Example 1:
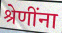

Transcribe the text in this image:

श्रेणींना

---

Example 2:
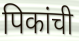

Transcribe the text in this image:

पिकांची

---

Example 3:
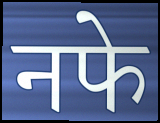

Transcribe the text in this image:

नफे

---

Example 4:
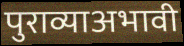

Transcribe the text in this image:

पुराव्याअभावी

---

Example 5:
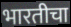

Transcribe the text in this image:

भारतीचा